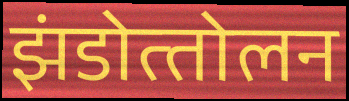
झंडोत्‍तोलन